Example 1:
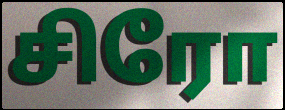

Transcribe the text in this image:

சிரோ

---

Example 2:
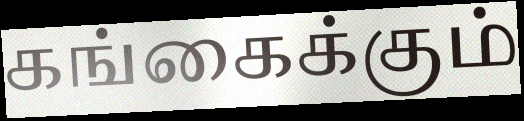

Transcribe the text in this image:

கங்கைக்கும்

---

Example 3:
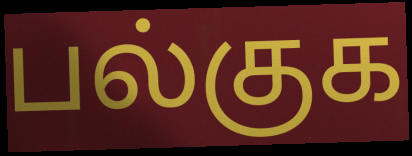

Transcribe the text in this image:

பல்குக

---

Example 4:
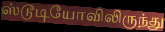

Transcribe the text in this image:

ஸ்டூடியோவிலிருந்து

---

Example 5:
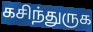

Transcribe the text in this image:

கசிந்துருக